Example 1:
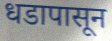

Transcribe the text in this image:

धडापासून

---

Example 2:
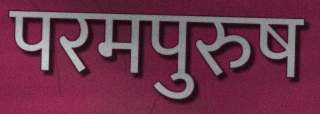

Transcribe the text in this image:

परमपुरुष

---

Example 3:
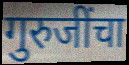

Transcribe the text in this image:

गुरुजींचा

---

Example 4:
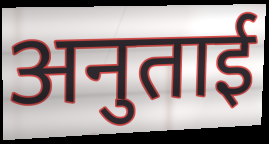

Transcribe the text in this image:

अनुताई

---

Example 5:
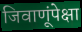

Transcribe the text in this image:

जिवाणूंपेक्षा